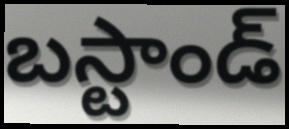
బస్టాండ్